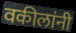
वकीलांनी